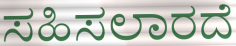
ಸಹಿಸಲಾರದೆ